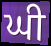
ਘੀ